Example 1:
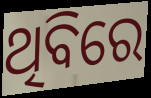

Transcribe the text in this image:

ଥିବିରେ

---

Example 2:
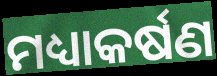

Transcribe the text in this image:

ମଧ୍ୟାକର୍ଷଣ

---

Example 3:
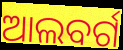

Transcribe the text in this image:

ଆଲବର୍ଗ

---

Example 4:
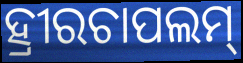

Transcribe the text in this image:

ହ୍ରୀରଚାପଲମ୍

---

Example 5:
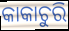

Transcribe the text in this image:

କାକାଚୁରି